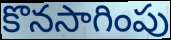
కొనసాగింపు